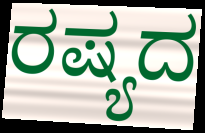
ರಷ್ಯದ